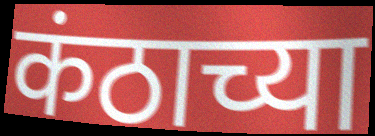
कंठाच्या